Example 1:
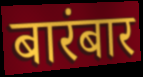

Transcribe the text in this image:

बारंबार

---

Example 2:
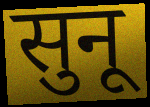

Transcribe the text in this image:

सुनू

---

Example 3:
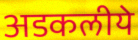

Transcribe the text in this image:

अडकलीये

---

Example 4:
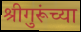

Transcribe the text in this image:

श्रीगुरूंच्या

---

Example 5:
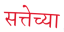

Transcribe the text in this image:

सत्तेच्या